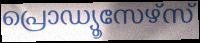
പ്രൊഡ്യൂസേഴ്സ്